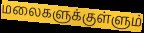
மலைகளுக்குள்ளும்